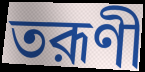
তরূণী